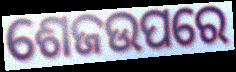
ଶେଜଉପରେ